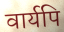
वार्यपि